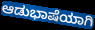
ಆಡುಭಾಷೆಯಾಗಿ